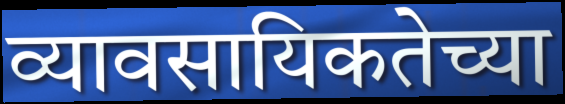
व्यावसायिकतेच्या